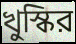
খুস্কির